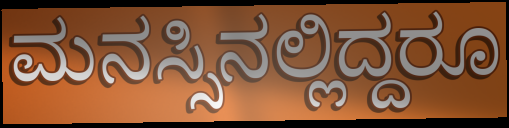
ಮನಸ್ಸಿನಲ್ಲಿದ್ದರೂ